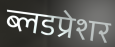
ब्लडप्रेशर